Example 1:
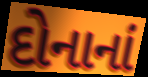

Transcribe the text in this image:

દોનાનાં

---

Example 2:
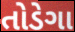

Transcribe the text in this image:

તોડેગા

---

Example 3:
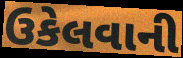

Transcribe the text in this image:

ઉકેલવાની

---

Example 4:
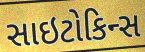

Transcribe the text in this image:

સાઇટોકિન્સ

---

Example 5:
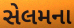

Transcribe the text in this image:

સેલમના